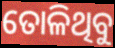
ତୋଳିଥିବୁ